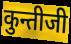
कुन्तीजी